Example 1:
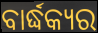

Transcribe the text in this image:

ବାର୍ଦ୍ଧକ୍ୟର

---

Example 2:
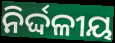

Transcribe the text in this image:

ନିର୍ଦ୍ଦଳୀୟ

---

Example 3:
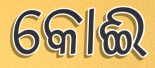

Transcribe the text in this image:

କୋଈ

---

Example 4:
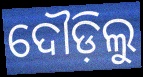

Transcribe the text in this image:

ଦୌଡ଼ିଲୁ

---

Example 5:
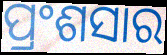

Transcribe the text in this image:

ପ୍ରଂଶସାର